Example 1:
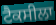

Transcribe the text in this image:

ਟੈਕਸੀਲਾ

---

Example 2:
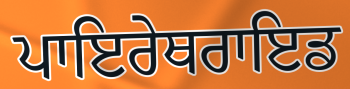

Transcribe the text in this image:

ਪਾਇਰੇਥਰਾਇਡ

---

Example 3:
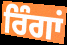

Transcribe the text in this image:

ਰਿੰਗਾਂ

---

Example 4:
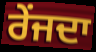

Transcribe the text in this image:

ਰੇਂਜਦਾ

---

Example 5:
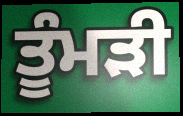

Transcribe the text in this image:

ਤੂੰਮੜੀ